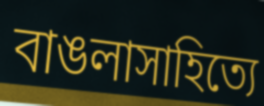
বাঙলাসাহিত্যে